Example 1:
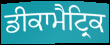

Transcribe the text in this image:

ਡੀਕਾਮੈਟ੍ਰਿਕ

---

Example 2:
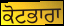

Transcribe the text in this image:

ਕੋਟਭਾਰਾ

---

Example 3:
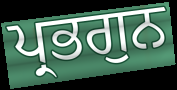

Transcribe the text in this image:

ਪ੍ਰਭਗੁਨ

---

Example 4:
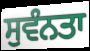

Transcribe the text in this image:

ਸੁਵੰਨਤਾ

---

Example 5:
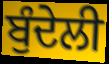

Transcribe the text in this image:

ਬੁੰਦੇਲੀ